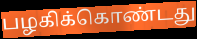
பழகிக்கொண்டது